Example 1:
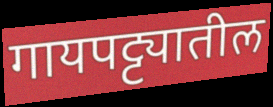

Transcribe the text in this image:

गायपट्ट्यातील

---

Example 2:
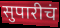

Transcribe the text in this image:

सुपारीचं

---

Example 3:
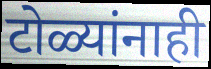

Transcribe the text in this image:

टोळ्यांनाही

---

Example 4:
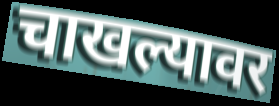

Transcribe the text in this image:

चाखल्यावर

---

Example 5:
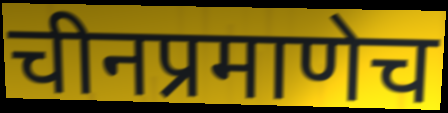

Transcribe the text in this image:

चीनप्रमाणेच